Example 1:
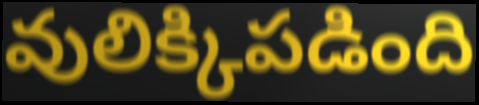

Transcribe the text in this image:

వులిక్కిపడింది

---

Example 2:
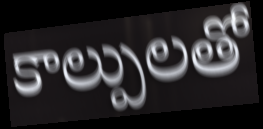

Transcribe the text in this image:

కాల్పులతో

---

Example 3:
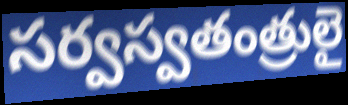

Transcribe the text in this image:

సర్వస్వతంత్రులై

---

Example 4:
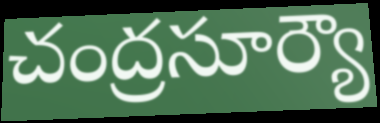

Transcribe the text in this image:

చంద్రసూర్యౌ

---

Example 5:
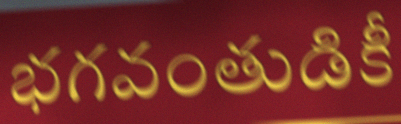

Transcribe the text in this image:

భగవంతుడికీ